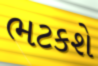
ભટકશે